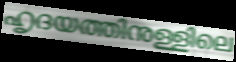
ഹൃദയത്തിനുള്ളിലെ